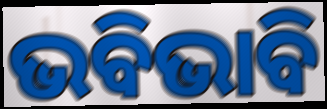
ଭବିଭାବି